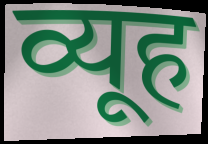
व्यूह